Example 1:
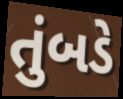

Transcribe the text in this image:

તુંબડે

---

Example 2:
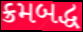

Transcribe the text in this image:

ક્રમબદ્ધ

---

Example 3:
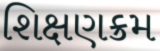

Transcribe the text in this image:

શિક્ષણક્રમ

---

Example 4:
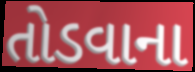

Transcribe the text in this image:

તોડવાના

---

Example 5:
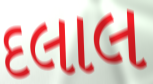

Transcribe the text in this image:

દલાલ